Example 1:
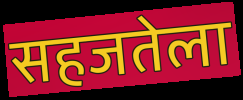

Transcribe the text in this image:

सहजतेला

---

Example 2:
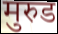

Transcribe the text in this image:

मुरुड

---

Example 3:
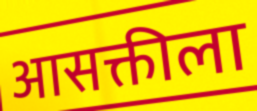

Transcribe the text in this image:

आसक्तीला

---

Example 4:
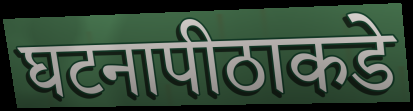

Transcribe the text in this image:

घटनापीठाकडे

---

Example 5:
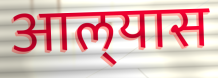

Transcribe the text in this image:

आल्यास